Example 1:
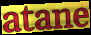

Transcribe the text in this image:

atane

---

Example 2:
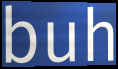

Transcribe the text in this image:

buh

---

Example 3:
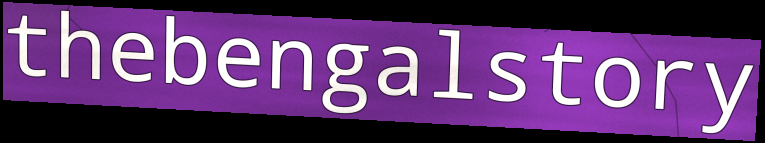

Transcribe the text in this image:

thebengalstory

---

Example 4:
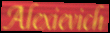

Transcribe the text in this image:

Alexievich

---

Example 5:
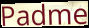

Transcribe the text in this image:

Padme